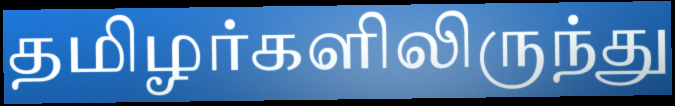
தமிழர்களிலிருந்து